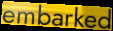
embarked